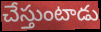
చేస్తుంటాడు